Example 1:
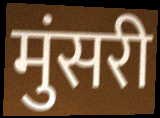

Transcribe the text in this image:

मुंसरी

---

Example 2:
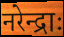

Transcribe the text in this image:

नरेन्द्राः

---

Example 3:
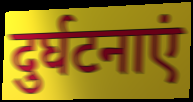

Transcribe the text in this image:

दुर्घटनाएं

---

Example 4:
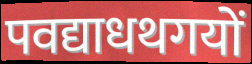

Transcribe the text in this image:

पवद्याधथगयों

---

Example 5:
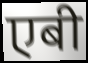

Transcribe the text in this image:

एबी